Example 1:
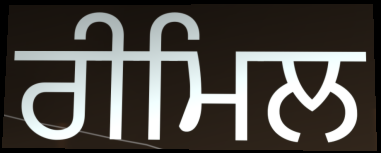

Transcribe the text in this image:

ਰੀਮਿਲ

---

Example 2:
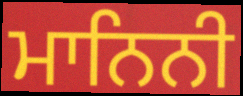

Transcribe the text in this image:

ਮਾਨਿਨੀ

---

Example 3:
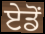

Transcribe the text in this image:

ਏਡੋਂ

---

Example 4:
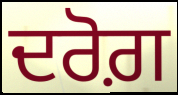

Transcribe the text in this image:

ਦਰੋਗ਼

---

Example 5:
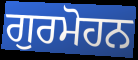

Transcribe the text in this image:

ਗੁਰਮੋਹਨ